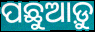
ପଛୁଆଡ଼ୁ